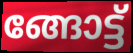
ങ്ങോട്ട്